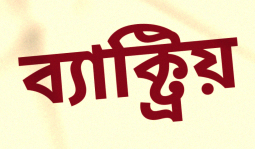
ব্যাক্ট্রিয়